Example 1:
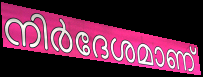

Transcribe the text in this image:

നിർദേശമാണ്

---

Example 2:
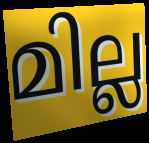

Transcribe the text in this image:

മില്ല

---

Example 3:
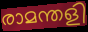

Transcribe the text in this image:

രാമന്തളി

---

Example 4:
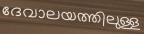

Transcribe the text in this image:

ദേവാലയത്തിലുള്ള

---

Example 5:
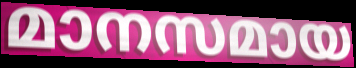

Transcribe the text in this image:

മാനസമായ